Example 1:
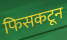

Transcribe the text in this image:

फिसकटून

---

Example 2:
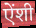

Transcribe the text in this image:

ऐंशी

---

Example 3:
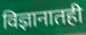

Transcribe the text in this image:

विज्ञानातही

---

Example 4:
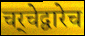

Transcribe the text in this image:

चर्चेद्वारेच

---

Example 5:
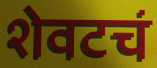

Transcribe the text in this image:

शेवटचं